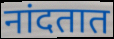
नांदतात